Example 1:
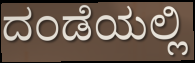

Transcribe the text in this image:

ದಂಡೆಯಲ್ಲಿ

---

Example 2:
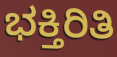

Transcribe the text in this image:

ಭಕ್ತಿರಿತಿ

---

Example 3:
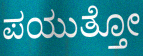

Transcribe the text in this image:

ಪಯುತ್ತೋ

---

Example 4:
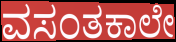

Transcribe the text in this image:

ವಸಂತಕಾಲೇ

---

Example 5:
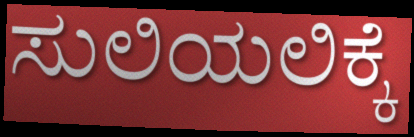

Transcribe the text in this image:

ಸುಲಿಯಲಿಕ್ಕೆ